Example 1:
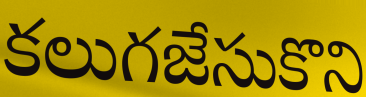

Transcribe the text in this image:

కలుగజేసుకొని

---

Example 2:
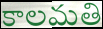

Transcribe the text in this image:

కాలమతి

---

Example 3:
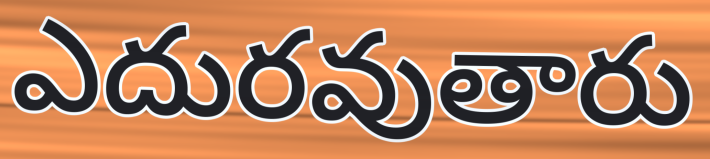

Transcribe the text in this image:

ఎదురవుతారు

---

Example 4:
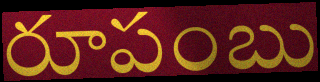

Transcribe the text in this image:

రూపంబు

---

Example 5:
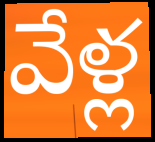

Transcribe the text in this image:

వేళ్ల